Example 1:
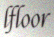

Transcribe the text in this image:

lfloor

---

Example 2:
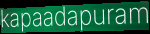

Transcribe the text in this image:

kapaadapuram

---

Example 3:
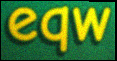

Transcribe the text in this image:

eqw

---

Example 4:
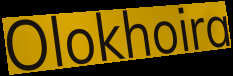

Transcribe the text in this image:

Olokhoira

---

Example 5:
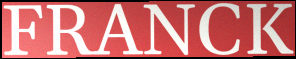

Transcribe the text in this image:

FRANCK